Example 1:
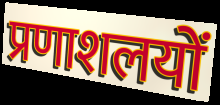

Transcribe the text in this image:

प्रणाशलयों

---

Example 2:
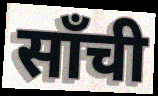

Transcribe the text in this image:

साँची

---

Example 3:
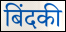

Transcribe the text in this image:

बिंदकी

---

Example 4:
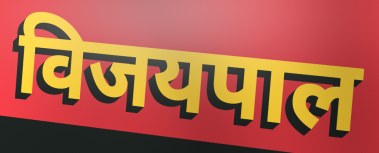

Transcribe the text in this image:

विजयपाल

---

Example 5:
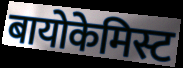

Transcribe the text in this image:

बायोकेमिस्ट